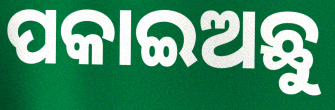
ପକାଇଅଛୁ